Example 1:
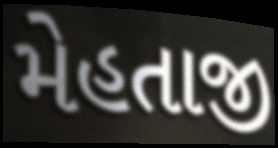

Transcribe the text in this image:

મેહતાજી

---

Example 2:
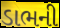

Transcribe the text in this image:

ડાભની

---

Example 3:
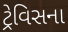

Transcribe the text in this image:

ટ્રેવિસના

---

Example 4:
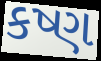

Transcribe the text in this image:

કષ્ણ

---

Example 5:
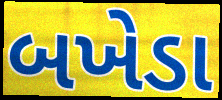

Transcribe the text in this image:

બખેડા